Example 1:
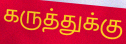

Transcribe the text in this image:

கருத்துக்கு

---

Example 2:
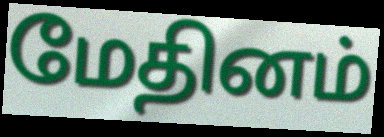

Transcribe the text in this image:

மேதினம்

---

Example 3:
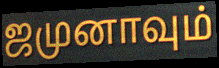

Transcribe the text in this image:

ஜமுனாவும்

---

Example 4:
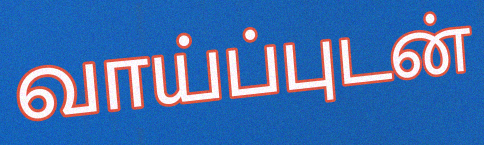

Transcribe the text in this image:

வாய்ப்புடன்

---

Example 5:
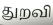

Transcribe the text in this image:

துறவி